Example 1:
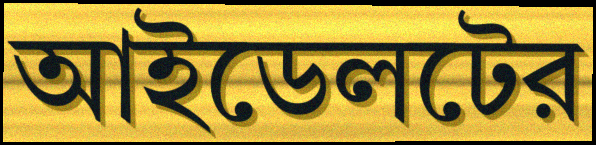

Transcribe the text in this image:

আইডেলটের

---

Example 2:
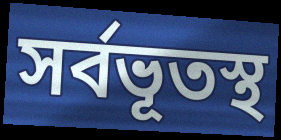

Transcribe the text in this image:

সর্বভূতস্থ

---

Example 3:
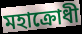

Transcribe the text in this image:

মহাক্রোধী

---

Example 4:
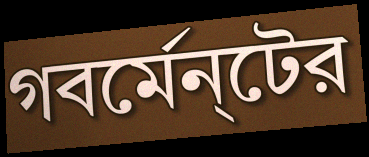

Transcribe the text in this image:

গবর্মেন্‌টের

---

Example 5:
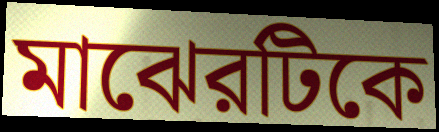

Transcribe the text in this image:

মাঝেরটিকে